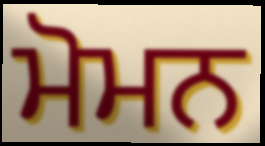
ਮੋਮਨ